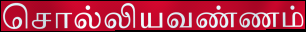
சொல்லியவண்ணம்